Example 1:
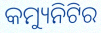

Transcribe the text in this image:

କମ୍ୟୁନିଟିର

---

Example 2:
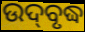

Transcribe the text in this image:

ଉଦ୍‌ବୃଦ୍ଧ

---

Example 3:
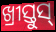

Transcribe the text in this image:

ଖ୍ରୀସ୍ତୁସ୍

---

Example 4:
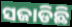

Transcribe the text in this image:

ସଜାଡିଛି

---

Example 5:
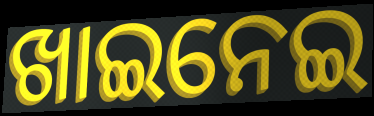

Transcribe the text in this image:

ଖାଇନେଇ